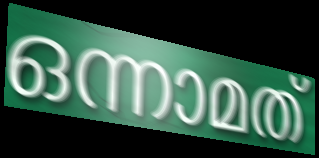
ഒന്നാമത്